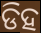
ଡିହ